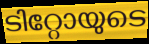
ടിറ്റോയുടെ